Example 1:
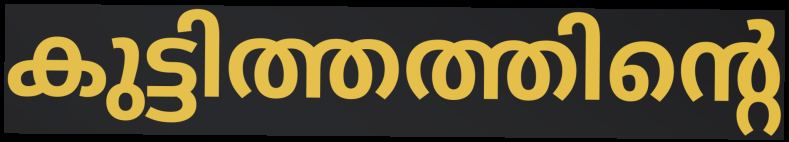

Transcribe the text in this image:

കുട്ടിത്തത്തിന്റെ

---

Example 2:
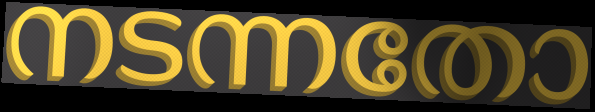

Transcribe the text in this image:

നടന്നതോ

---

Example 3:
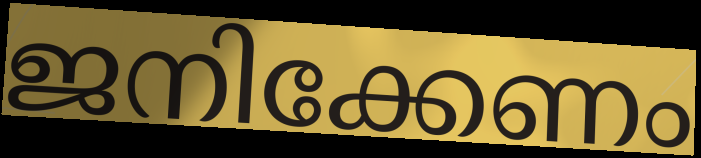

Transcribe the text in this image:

ജനിക്കേണം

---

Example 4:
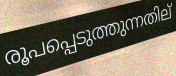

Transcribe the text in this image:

രൂപപ്പെടുത്തുന്നതില്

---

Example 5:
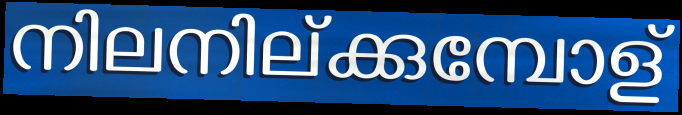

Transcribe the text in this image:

നിലനില്ക്കുമ്പോള്